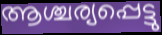
ആശ്ചര്യപ്പെട്ടു